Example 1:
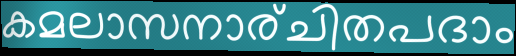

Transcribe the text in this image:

കമലാസനാര്ചിതപദാം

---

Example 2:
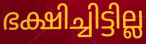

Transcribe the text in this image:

ഭക്ഷിച്ചിട്ടില്ല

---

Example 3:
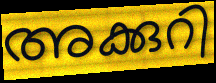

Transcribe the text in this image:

അക്കുറി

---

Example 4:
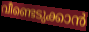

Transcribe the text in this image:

വീണ്ടെടുക്കാൻ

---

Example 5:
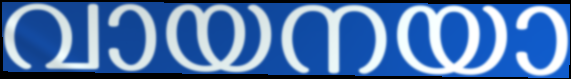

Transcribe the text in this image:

വായനയാ